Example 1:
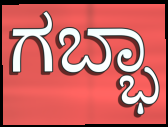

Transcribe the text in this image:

ಗಬ್ಭಾ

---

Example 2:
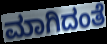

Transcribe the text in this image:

ಮಾಗಿದಂತೆ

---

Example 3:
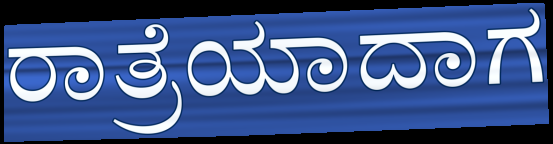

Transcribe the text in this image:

ರಾತ್ರೆಯಾದಾಗ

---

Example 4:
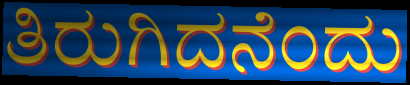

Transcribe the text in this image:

ತಿರುಗಿದನೆಂದು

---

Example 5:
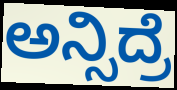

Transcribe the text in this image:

ಅನ್ಸಿದ್ರೆ